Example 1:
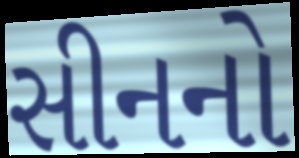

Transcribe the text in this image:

સીનનો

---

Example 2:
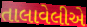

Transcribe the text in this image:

તાલાવેલીએ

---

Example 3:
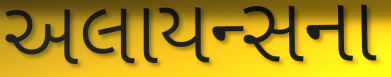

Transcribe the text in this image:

અલાયન્સના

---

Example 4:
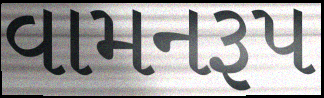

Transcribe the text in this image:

વામનરૂપ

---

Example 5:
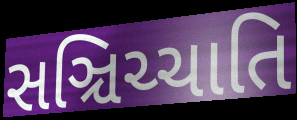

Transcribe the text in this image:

સઞ્ચિચ્ચાતિ